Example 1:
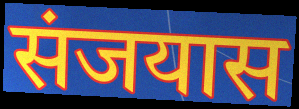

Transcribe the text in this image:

संजयास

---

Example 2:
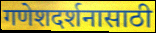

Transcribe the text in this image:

गणेशदर्शनासाठी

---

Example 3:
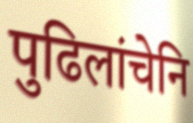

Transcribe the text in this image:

पुढिलांचेनि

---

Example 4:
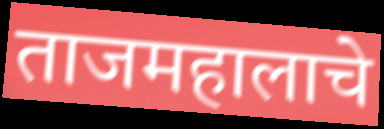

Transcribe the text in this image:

ताजमहालाचे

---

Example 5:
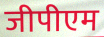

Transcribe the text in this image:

जीपीएम